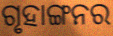
ଗୃହାଙ୍ଗନର